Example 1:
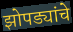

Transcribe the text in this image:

झोपड्यांचे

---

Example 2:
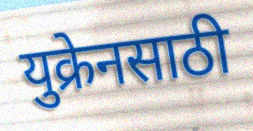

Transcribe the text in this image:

युक्रेनसाठी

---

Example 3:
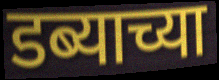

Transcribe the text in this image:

डब्याच्या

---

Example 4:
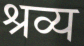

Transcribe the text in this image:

श्रव्य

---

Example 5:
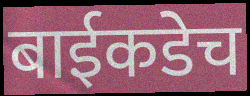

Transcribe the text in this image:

बाईकडेच